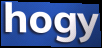
hogy